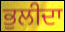
ਭੁਲੀਦਾ